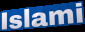
Islami